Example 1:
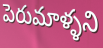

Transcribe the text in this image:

పెరుమాళ్ళని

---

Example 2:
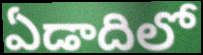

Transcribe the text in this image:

ఏడాదిలో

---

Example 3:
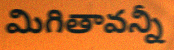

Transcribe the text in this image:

మిగితావన్నీ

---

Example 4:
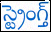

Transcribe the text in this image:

స్ట్రెంగ్త్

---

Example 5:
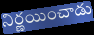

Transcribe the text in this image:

నిర్ణయించాడు